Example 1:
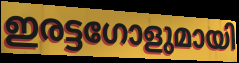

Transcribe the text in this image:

ഇരട്ടഗോളുമായി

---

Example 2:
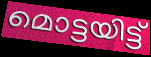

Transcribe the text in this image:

മൊട്ടയിട്ട്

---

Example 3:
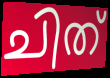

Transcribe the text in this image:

ചിത്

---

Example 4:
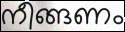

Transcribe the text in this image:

നീങ്ങണം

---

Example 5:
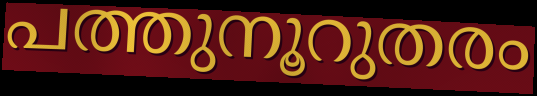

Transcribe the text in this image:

പത്തുനൂറുതരം